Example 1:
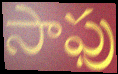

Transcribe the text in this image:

సాఫు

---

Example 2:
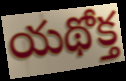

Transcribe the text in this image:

యథోక్త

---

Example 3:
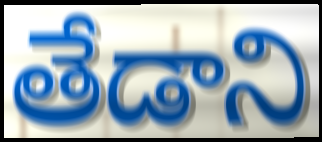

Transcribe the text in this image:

తేడాని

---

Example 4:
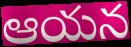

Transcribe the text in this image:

ఆయన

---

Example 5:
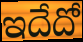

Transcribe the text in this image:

ఇదేదో